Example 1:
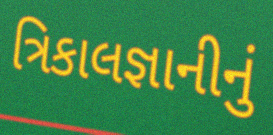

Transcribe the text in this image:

ત્રિકાલજ્ઞાનીનું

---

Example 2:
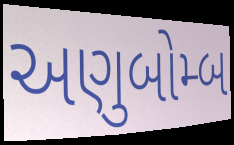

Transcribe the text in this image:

અણુબોમ્બ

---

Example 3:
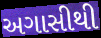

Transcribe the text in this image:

અગાસીથી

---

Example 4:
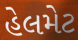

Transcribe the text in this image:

હેલમેટ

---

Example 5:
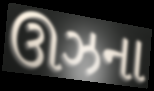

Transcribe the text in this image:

ઊઝના